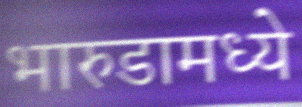
भारुडामध्ये